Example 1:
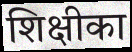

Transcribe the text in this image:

शिक्षीका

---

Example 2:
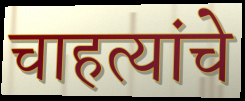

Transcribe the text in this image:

चाहत्यांचे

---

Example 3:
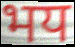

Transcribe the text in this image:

भय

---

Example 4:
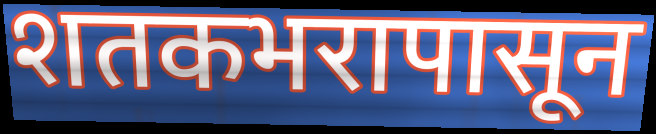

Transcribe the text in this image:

शतकभरापासून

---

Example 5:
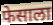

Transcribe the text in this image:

फेसाला